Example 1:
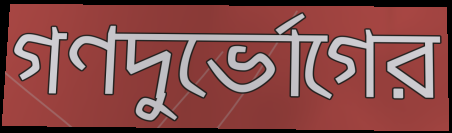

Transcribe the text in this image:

গণদুর্ভোগের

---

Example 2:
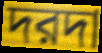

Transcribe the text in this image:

দরদা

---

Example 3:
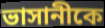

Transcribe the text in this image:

ভাসানীকে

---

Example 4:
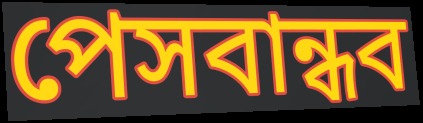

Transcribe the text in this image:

পেসবান্ধব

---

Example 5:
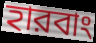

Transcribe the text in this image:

হারবাং